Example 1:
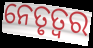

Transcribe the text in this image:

ନେତୃତ୍ୱର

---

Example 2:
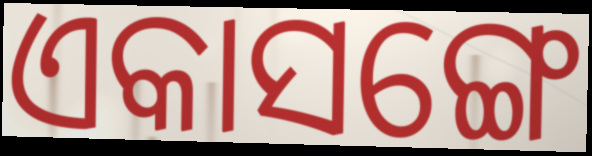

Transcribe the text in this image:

ଏକାସଙ୍ଗେ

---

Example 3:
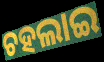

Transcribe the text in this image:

ଚହଲାଇ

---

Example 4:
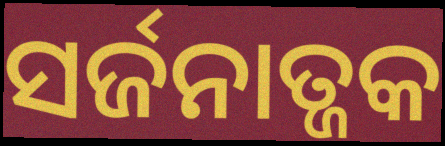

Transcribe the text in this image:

ସର୍ଜନାତ୍ଜକ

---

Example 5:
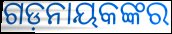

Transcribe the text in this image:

ଗଡ଼ନାୟକଙ୍କର